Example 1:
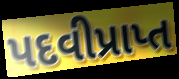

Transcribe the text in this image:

પદવીપ્રાપ્ત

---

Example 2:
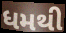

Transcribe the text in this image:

ધમથી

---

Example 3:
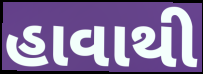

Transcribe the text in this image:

હાવાથી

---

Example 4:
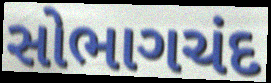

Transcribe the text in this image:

સોભાગચંદ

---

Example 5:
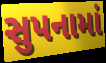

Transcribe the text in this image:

સુપનામાં